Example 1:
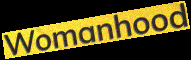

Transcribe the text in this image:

Womanhood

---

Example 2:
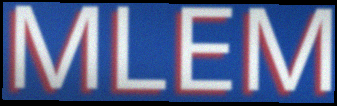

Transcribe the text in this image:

MLEM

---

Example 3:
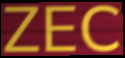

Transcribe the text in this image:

ZEC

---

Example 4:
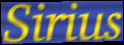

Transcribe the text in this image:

Sirius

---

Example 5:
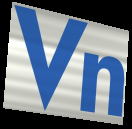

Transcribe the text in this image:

Vn